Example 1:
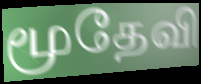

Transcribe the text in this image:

மூதேவி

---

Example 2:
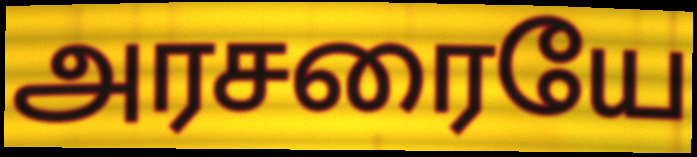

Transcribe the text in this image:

அரசரையே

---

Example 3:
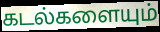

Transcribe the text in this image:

கடல்களையும்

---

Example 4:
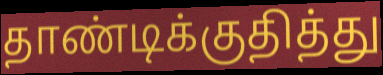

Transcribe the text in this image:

தாண்டிக்குதித்து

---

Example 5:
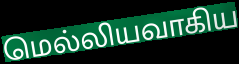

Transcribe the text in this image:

மெல்லியவாகிய